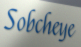
Sobcheye